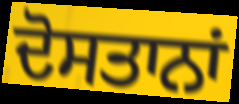
ਦੋਸਤਾਨਾਂ